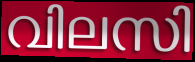
വിലസി